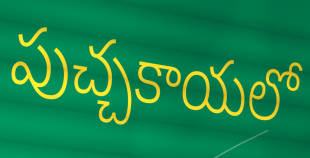
పుచ్చకాయలో